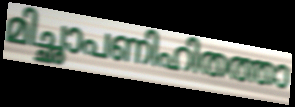
മിച്ഛാപണിഹിതത്താ